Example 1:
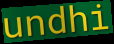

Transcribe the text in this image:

undhi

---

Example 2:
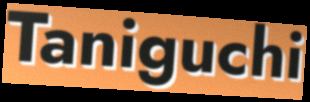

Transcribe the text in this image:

Taniguchi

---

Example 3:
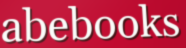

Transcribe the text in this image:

abebooks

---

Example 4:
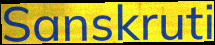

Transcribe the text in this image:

Sanskruti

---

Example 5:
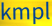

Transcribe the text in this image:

kmpl